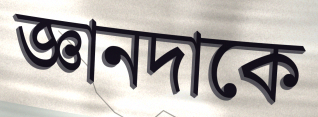
জ্ঞানদাকে